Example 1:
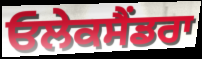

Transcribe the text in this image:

ਓਲੇਕਸੈਂਡਰਾ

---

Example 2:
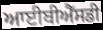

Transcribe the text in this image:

ਆਈਬੀਐੱਸਡੀ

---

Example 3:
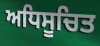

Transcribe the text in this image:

ਅਧਿਸੂਚਿਤ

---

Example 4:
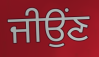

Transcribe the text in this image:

ਜੀਉਂਣ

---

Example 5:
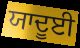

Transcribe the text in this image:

ਯਾਦੂਈ